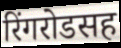
रिंगरोडसह